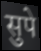
सुपे